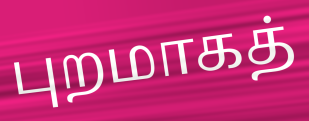
புறமாகத்